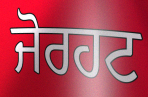
ਜੋਰਹਟ